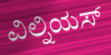
ವಿಲ್ನಿಯಸ್